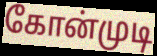
கோன்முடி